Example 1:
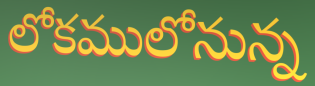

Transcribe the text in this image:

లోకములోనున్న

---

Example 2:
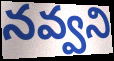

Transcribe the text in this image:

నవ్వని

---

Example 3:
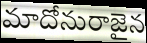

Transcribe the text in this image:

మాదోనురాజైన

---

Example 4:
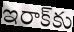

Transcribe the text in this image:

ఇరాక్‌కు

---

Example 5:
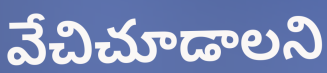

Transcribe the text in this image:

వేచిచూడాలని